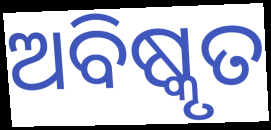
ଅବିଷ୍କୃତ